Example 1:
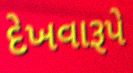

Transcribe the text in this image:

દેખવારૂપે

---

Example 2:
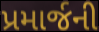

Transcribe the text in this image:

પ્રમાર્જની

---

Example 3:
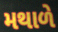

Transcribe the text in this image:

મથાળે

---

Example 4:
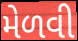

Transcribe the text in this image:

મેળવી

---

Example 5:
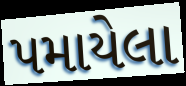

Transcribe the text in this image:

પમાયેલા